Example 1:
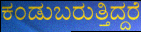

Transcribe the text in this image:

ಕಂಡುಬರುತ್ತಿದ್ದರೆ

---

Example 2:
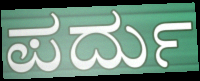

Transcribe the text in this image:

ಪರ್ದು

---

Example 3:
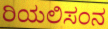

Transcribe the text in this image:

ರಿಯಲಿಸಂನ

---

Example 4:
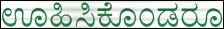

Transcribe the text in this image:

ಊಹಿಸಿಕೊಂಡರೂ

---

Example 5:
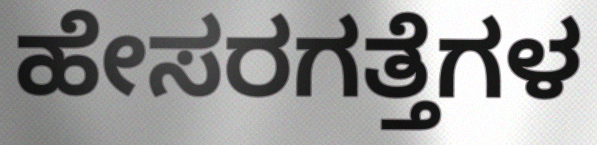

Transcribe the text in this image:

ಹೇಸರಗತ್ತೆಗಳ